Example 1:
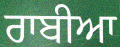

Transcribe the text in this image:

ਰਾਬੀਆ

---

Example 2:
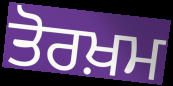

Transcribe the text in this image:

ਤੋਰਖ਼ਮ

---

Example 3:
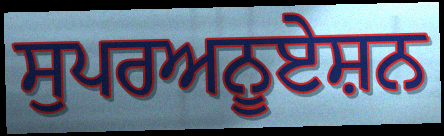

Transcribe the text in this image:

ਸੁਪਰਅਨੂਏਸ਼ਨ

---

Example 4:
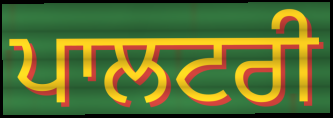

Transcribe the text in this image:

ਪਾਲਟਰੀ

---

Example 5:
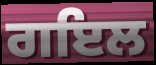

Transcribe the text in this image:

ਗਇਲ